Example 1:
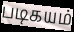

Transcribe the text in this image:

படிகயம்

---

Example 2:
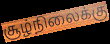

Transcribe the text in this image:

சூழ்நிலைக்கு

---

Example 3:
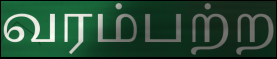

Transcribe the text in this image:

வரம்பற்ற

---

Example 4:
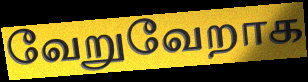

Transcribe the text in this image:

வேறுவேறாக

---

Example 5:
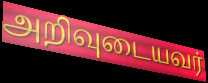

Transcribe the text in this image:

அறிவுடையவர்